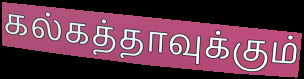
கல்கத்தாவுக்கும்